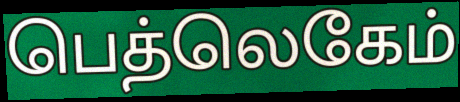
பெத்லெகேம்